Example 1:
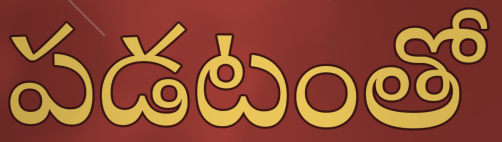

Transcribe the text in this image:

పడటంతో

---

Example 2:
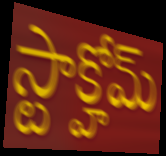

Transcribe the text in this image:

స్టాక్హోమ్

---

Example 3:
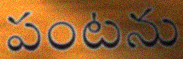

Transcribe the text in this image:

పంటను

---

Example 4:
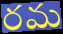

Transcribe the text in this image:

రమ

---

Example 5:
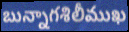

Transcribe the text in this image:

బున్నాగశిలీముఖ